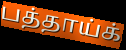
பத்தாய்க்